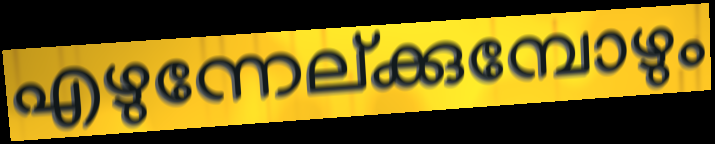
എഴുന്നേല്ക്കുമ്പോഴും